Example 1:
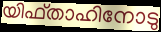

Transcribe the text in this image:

യിഫ്താഹിനോടു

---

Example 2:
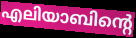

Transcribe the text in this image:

എലിയാബിന്റെ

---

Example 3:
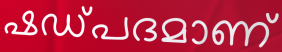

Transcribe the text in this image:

ഷഡ്പദമാണ്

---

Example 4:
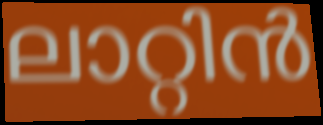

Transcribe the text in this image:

ലാറ്റിൻ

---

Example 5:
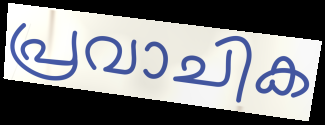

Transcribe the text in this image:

പ്രവാചിക